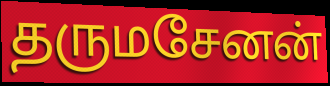
தருமசேனன்